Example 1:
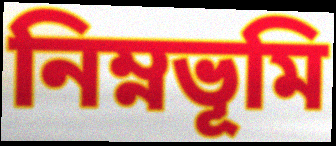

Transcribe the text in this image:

নিম্নভূমি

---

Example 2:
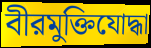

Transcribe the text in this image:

বীরমুক্তিযোদ্ধা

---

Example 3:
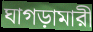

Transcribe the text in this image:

ঘাগড়ামারী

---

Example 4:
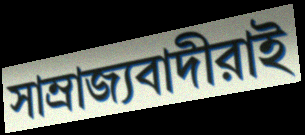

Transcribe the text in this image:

সাম্রাজ্যবাদীরাই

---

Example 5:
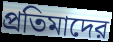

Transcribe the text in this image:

প্রতিমাদের